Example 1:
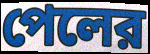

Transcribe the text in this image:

পেলের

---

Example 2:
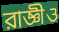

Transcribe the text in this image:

রাজ্ঞীও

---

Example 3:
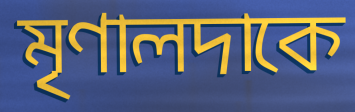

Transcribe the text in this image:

মৃণালদাকে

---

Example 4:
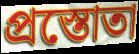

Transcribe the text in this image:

প্রস্তোতা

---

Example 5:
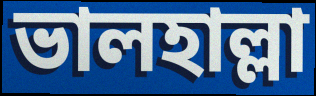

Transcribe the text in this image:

ভালহাল্লা